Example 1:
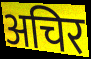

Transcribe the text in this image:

अचिर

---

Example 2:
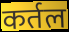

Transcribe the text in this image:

कर्तल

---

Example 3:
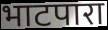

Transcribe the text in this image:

भाटपारा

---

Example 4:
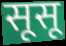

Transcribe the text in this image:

सूसू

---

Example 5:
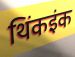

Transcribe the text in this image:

थिंकइंक